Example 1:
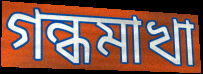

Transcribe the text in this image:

গন্ধমাখা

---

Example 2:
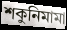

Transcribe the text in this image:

শকুনিমামা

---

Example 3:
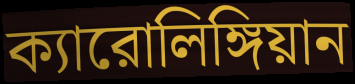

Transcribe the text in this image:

ক্যারোলিঙ্গিয়ান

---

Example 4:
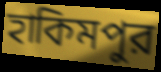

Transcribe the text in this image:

হাকিমপুর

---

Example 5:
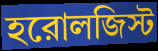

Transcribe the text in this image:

হরোলজিস্ট